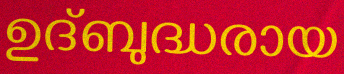
ഉദ്ബുദ്ധരായ